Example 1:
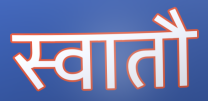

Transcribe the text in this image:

स्वातौ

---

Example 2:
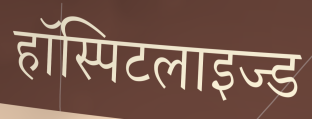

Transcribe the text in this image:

हॉस्पिटलाइज्ड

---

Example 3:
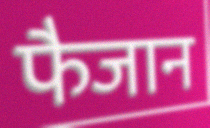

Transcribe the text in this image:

फैजान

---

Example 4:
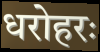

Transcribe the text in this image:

धरोहरः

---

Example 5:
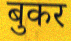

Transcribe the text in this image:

बुकर